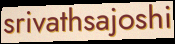
srivathsajoshi